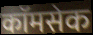
कॉमसेक